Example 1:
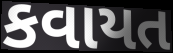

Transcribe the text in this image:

કવાયત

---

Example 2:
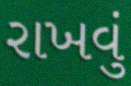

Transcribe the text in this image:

રાખવું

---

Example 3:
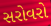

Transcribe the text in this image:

સરોવરો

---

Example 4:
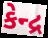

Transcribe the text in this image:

કેન્દ્ર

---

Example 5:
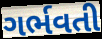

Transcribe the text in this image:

ગર્ભવતી